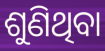
ଶୁଣିଥିବା